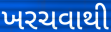
ખરચવાથી